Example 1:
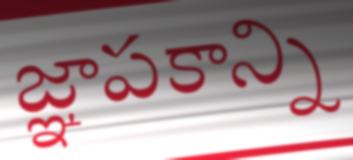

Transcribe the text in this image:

జ్ఞాపకాన్ని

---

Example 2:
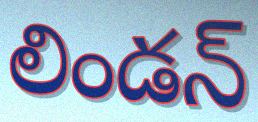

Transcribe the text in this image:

లిండన్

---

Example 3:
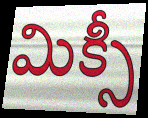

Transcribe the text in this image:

మిక్సీ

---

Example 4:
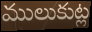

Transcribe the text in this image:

ములుకుట్ల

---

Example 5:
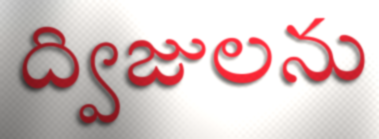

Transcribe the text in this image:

ద్విజులను